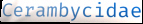
Cerambycidae